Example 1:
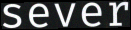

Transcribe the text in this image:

sever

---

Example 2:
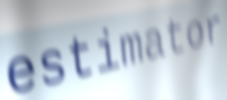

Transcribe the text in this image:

estimator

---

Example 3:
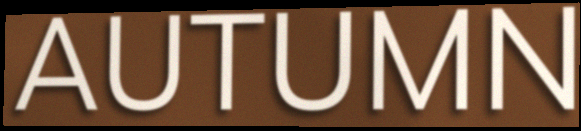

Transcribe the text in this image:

AUTUMN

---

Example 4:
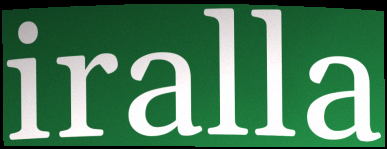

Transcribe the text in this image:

iralla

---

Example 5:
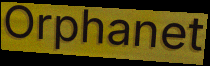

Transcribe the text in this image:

Orphanet